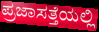
ಪ್ರಜಾಸತ್ತೆಯಲ್ಲಿ